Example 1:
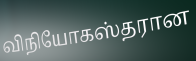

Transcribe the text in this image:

விநியோகஸ்தரான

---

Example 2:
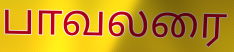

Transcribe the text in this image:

பாவலரை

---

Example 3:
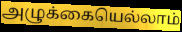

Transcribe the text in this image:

அழுக்கையெல்லாம்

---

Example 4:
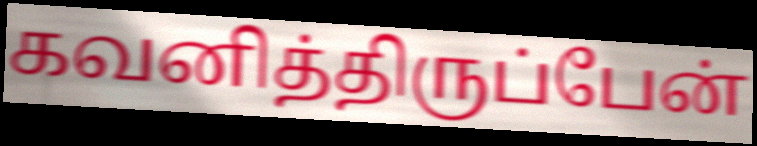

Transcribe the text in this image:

கவனித்திருப்பேன்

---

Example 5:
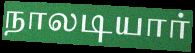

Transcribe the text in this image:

நாலடியார்